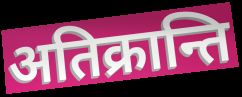
अतिक्रान्ति